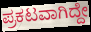
ಪ್ರಕಟವಾಗಿದ್ದೇ